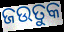
ଜଉତୁକ